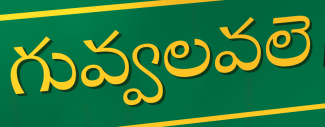
గువ్వలవలె